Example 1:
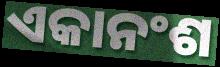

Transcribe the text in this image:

ଏକାନଂଶ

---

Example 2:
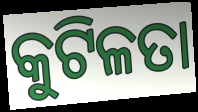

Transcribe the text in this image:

କୁଟିଳତା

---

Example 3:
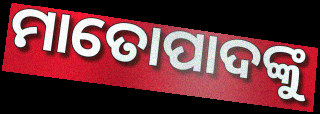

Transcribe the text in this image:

ମାତୋପାଦଙ୍କୁ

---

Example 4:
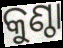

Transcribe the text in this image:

କୁଣ୍ଠା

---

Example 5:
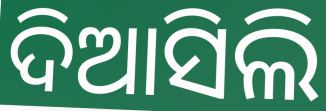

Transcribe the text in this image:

ଦିଆସିଲି